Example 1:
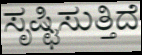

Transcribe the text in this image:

ಸೃಷ್ಟಿಸುತ್ತಿದೆ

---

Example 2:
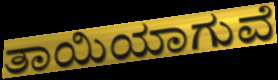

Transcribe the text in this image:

ತಾಯಿಯಾಗುವೆ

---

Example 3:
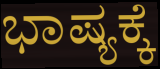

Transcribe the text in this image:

ಭಾಷ್ಯಕ್ಕೆ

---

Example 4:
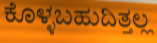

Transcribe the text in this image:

ಕೊಳ್ಳಬಹುದಿತ್ತಲ್ಲ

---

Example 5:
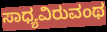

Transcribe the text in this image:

ಸಾಧ್ಯವಿರುವಂಥ